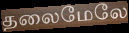
தலைமேலே